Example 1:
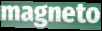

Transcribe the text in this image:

magneto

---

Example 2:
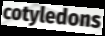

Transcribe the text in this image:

cotyledons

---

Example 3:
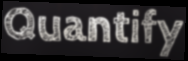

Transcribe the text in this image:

Quantify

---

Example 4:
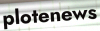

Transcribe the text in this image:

plotenews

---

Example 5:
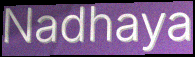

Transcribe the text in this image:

Nadhaya